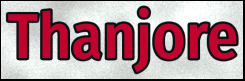
Thanjore